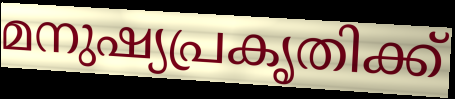
മനുഷ്യപ്രകൃതിക്ക്